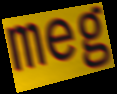
meg